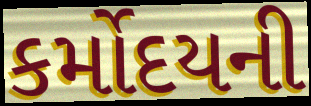
કર્મોદયની